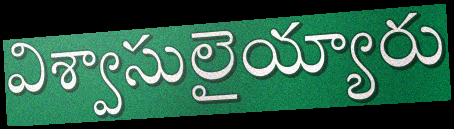
విశ్వాసులైయ్యారు